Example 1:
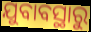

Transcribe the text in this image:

ଯୁବାବସ୍ଥାରୁ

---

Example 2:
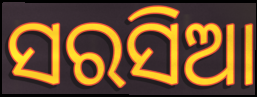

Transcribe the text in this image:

ସରସିଆ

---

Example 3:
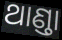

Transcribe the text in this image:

ଥାଣ୍ଡା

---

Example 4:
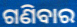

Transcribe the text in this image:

ଗଣିବାର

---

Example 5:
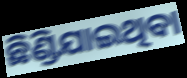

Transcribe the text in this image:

ଛିଣ୍ଡିଯାଇଥିବା